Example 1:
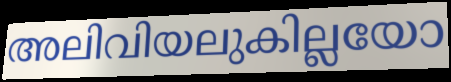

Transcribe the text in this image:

അലിവിയലുകില്ലയോ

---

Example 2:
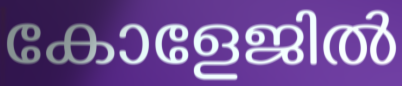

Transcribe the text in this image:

കോളേജിൽ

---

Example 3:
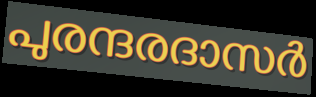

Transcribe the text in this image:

പുരന്ദരദാസർ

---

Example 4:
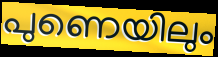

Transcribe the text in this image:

പുണെയിലും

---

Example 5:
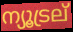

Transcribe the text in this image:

ന്യൂട്രല്